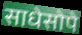
साधेसोपे